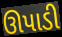
ઊપાડી